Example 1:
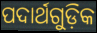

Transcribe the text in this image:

ପଦାର୍ଥଗୁଡ଼ିକ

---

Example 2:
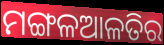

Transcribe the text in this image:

ମଙ୍ଗଳଆଳତିର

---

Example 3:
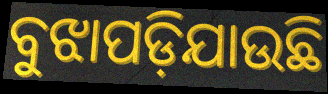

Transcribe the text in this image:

ବୁଝାପଡ଼ିଯାଉଛି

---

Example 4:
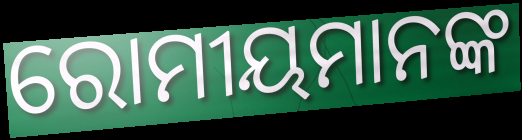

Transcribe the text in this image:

ରୋମୀୟମାନଙ୍କ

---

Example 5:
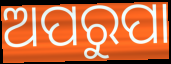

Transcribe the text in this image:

ଅପରୁପା